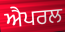
ਐਪਰਲ